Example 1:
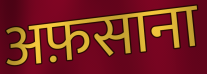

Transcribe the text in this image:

अफ़साना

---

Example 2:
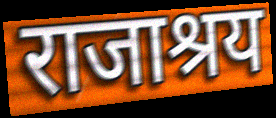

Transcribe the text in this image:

राजाश्रय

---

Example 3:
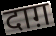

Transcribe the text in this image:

दाग़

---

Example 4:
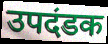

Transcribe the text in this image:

उपदंडक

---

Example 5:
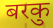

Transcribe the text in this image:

बरकु